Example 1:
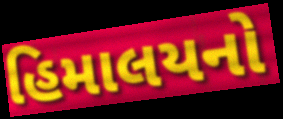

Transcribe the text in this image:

હિમાલયનો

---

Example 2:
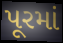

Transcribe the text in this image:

પૂરમાં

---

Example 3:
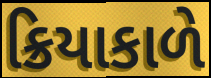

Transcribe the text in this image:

ક્રિયાકાળે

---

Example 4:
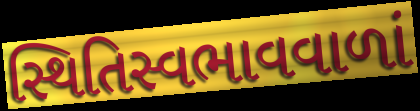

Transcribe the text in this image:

સ્થિતિસ્વભાવવાળાં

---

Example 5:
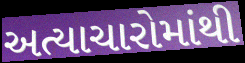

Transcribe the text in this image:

અત્યાચારોમાંથી